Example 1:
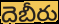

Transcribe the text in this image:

దెబీరు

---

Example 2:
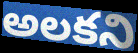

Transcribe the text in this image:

అలకని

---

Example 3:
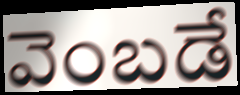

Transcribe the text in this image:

వెంబడే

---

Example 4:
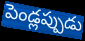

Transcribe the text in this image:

పెండ్లప్పుడు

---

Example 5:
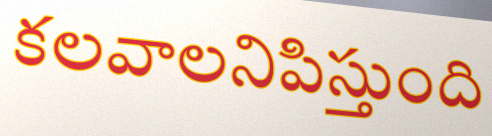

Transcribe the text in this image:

కలవాలనిపిస్తుంది